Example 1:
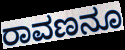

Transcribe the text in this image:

ರಾವಣನೂ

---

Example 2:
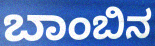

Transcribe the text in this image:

ಬಾಂಬಿನ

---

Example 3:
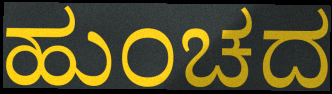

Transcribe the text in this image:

ಹುಂಚದ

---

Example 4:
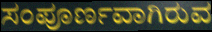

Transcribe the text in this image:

ಸಂಪೂರ್ಣವಾಗಿರುವ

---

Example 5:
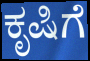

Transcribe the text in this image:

ಕೃಷಿಗೆ